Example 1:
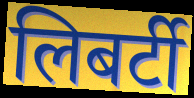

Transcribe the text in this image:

लिबर्टी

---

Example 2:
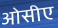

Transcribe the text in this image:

ओसीए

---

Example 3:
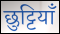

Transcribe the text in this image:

छुट्टियाँ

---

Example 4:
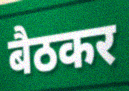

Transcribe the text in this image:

बैठकर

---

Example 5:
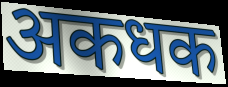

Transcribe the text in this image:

अकधक